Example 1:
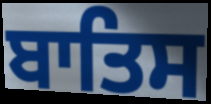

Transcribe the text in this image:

ਬਾਤਿਸ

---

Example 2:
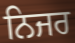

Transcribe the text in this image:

ਨਿਜਰ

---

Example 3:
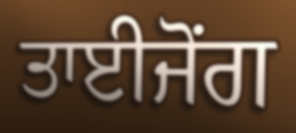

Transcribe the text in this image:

ਤਾਈਜੋਂਗ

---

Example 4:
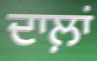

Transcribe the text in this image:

ਦਾਲ਼ਾਂ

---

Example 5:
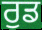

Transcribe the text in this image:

ਰੁਡ